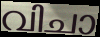
വിചാ